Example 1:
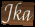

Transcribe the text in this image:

Jka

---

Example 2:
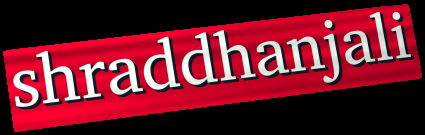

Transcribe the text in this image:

shraddhanjali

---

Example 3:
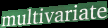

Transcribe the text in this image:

multivariate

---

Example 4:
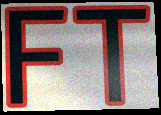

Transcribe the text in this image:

FT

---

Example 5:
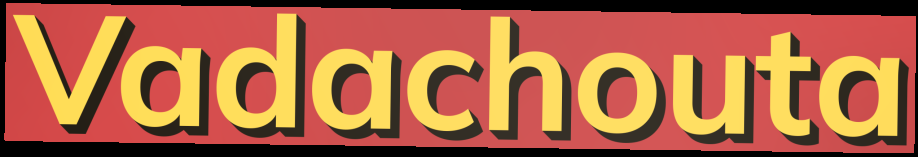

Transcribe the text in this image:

Vadachouta